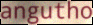
angutho